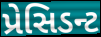
પ્રેસિડન્ટ